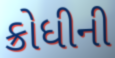
ક્રોધીની